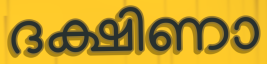
ദക്ഷിണാ